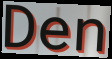
Den